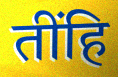
तींहि